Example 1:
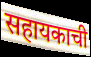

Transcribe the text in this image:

सहायकाची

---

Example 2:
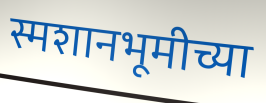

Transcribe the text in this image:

स्मशानभूमीच्या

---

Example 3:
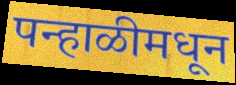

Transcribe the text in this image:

पन्हाळीमधून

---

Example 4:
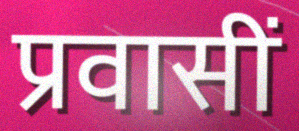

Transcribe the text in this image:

प्रवासीं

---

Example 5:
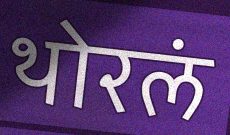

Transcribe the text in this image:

थोरलं